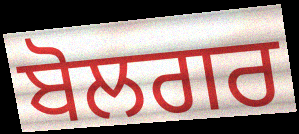
ਬੋਲਗਰ